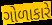
ગોળાકારે